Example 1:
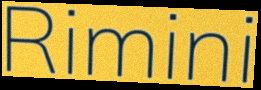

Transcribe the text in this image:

Rimini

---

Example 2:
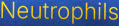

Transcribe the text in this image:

Neutrophils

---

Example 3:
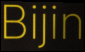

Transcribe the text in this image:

Bijin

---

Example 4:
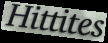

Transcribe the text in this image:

Hittites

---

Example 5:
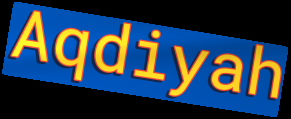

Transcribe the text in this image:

Aqdiyah